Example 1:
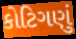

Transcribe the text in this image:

કોટિગણું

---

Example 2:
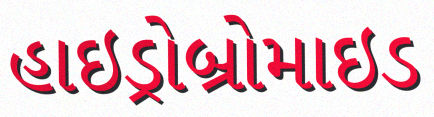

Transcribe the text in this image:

હાઇડ્રોબ્રોમાઇડ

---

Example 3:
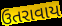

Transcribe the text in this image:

ઉતરાવાય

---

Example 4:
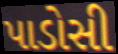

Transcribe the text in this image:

પાડોસી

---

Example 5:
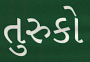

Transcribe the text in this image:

તુરુકો